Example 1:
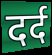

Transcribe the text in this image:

दर्द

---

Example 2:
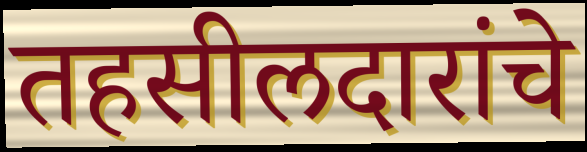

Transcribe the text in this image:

तहसीलदारांचे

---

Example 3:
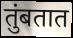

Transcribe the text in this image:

तुंबतात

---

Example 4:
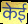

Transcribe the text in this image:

केई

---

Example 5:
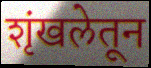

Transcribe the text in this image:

शृंखलेतून